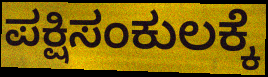
ಪಕ್ಷಿಸಂಕುಲಕ್ಕೆ